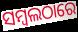
ସମ୍ବଲଠାରେ